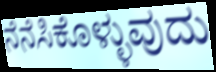
ನೆನೆಸಿಕೊಳ್ಳುವುದು